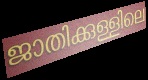
ജാതിക്കുള്ളിലെ